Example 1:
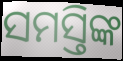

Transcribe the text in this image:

ସମସ୍ତିଙ୍କ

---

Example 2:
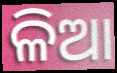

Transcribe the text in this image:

ଳିଆ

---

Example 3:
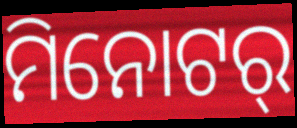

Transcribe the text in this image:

ମିନୋଟର୍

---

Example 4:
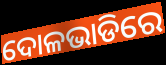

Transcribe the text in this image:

ଦୋଳଭାଡିରେ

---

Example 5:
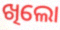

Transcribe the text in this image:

ଖିଲୋ